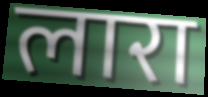
लारा